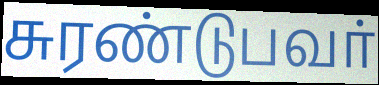
சுரண்டுபவர்